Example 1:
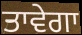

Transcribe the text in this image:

ਤਾਵੇਗਾ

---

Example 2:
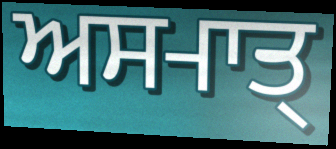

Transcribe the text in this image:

ਅਸ੍ਮਾਤ੍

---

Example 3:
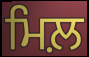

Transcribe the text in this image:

ਮਿਲ਼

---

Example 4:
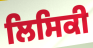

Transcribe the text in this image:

ਲਿਸਿਕੀ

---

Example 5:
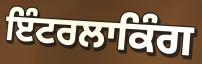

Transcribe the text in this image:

ਇੰਟਰਲਾਕਿੰਗ